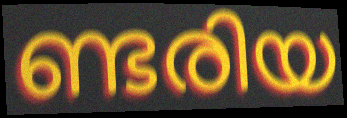
ണ്ടരിയ